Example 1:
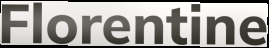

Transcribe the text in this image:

Florentine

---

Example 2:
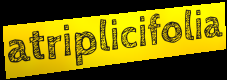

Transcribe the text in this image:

atriplicifolia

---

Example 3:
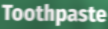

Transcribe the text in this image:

Toothpaste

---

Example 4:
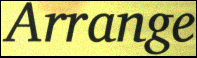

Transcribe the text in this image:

Arrange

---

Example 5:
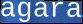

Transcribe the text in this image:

agara